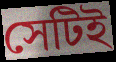
সেটিই